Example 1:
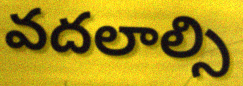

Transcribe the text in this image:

వదలాల్సి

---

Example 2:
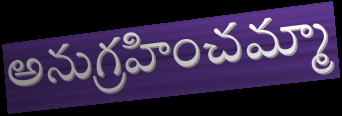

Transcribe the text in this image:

అనుగ్రహించమ్మా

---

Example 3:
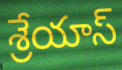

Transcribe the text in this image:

శ్రేయాస్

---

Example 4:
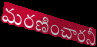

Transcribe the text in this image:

మరణించారనీ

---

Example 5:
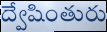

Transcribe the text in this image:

ద్వేషింతురు